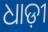
ଧାଡ଼ୀ